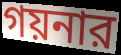
গয়নার